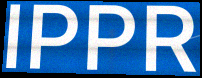
IPPR